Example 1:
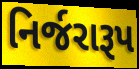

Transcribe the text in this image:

નિર્જરારૂપ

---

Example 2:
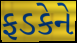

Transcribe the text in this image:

ફડકેને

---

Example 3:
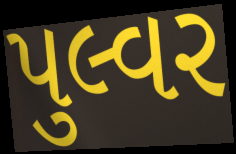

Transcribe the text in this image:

પુલ્વર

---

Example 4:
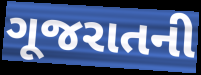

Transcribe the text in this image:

ગૂજરાતની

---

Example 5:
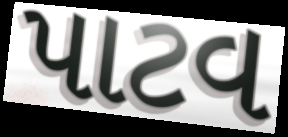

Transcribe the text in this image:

પાટવ